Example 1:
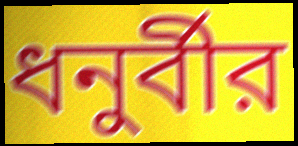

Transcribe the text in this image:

ধনুর্বীর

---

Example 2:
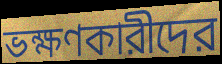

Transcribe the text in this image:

ভক্ষণকারীদের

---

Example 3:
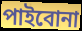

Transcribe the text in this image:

পাইবোনা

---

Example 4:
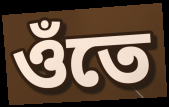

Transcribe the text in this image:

ওঁতে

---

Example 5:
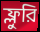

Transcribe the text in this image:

ফ্লুরি